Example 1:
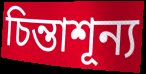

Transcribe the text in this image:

চিন্তাশূন্য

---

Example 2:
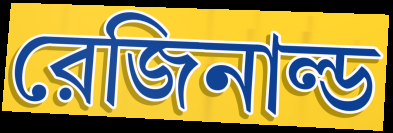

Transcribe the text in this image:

রেজিনাল্ড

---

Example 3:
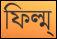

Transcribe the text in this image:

ফিল্ম্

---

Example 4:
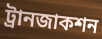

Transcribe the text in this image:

ট্রানজাকশন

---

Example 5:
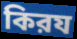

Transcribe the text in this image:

কিরয